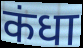
कंधा